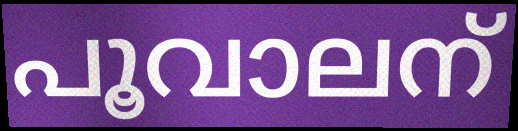
പൂവാലന്